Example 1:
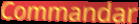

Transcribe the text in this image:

Commandar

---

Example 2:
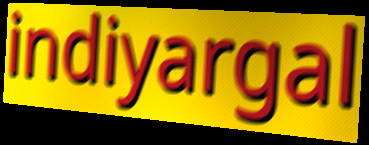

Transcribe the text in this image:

indiyargal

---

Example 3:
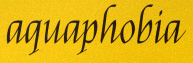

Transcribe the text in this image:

aquaphobia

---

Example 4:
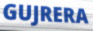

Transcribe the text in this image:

GUJRERA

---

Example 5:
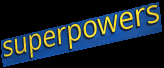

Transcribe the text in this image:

superpowers